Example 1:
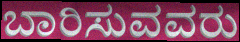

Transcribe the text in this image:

ಬಾರಿಸುವವರು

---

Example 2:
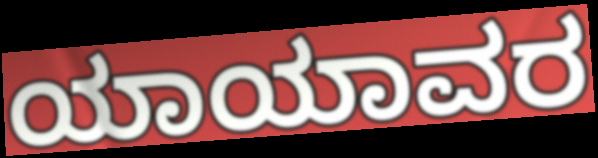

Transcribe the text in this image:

ಯಾಯಾವರ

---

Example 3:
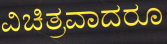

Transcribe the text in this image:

ವಿಚಿತ್ರವಾದರೂ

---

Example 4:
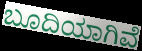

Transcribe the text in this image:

ಬೂದಿಯಾಗಿವೆ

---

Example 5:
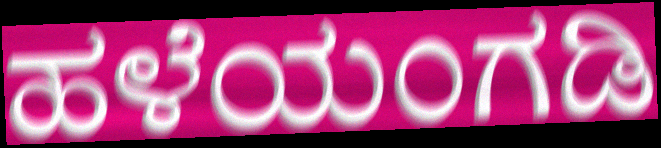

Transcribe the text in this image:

ಹಳೆಯಂಗಡಿ